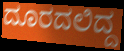
ದೂರದಲಿದ್ದ